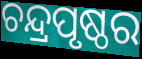
ଚନ୍ଦ୍ରପୃଷ୍ଠର